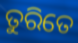
ତୁରିତେ